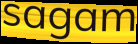
sagam